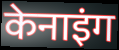
केनाइंग